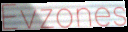
Evzones